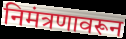
निमंत्रणावरून